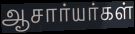
ஆசார்யர்கள்